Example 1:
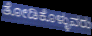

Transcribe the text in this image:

ತೋಡಿಕೊಳ್ಳುವರು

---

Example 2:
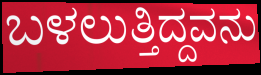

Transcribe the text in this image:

ಬಳಲುತ್ತಿದ್ದವನು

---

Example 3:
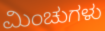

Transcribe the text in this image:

ಮಿಂಚುಗಳು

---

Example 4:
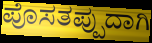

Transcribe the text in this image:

ಪೊಸತಪ್ಪುದಾಗಿ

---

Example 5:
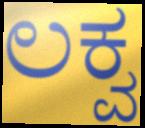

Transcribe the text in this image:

ಲಕ್ವ